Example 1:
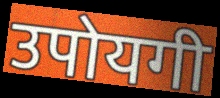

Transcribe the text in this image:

उपोयगी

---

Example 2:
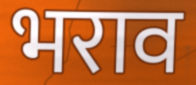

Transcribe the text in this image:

भराव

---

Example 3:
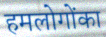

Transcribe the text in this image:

हमलोगोंका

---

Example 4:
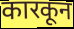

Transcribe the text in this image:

कारकून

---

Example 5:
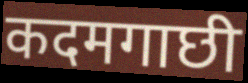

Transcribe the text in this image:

कदमगाछी